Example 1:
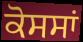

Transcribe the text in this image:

ਕੋਸਸਾਂ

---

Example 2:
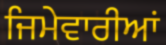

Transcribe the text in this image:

ਜਿਮੇਵਾਰੀਆਂ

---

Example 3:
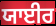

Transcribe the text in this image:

ਯਾਈਰ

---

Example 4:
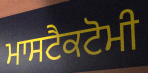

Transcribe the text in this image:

ਮਾਸਟੈਕਟੋਮੀ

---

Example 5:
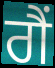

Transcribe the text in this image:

ਗੈਂ